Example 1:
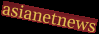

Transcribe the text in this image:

asianetnews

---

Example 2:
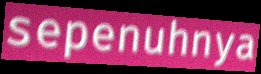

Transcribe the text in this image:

sepenuhnya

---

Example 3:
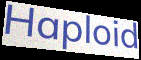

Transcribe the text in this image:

Haploid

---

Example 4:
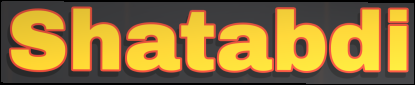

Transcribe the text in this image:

Shatabdi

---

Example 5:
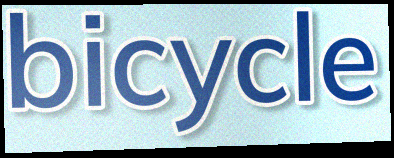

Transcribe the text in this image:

bicycle